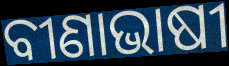
ବୀଣାଭାଷୀ